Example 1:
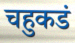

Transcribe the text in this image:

चहुकडं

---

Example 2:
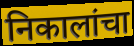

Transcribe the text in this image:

निकालांचा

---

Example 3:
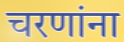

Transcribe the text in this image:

चरणांना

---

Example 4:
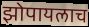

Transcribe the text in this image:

झोपायलाच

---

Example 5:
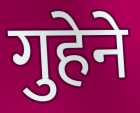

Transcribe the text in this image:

गुहेने